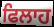
ਫਿਲਾਹ